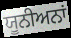
ਯੂਨੀਅਨਾਂ